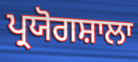
ਪ੍ਰਯੋਗਸ਼ਾਲਾ